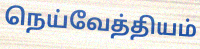
நெய்வேத்தியம்